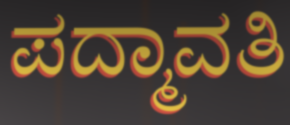
ಪದ್ಮಾವತಿ